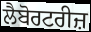
ਲੈਬੋਰਟਰੀਜ਼